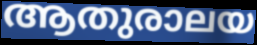
ആതുരാലയ